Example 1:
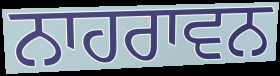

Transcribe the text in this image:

ਨਾਹਰਾਵਨ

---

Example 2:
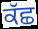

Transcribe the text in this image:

ਕੱਛ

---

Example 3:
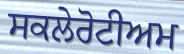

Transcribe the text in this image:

ਸਕਲੇਰੋਟੀਅਮ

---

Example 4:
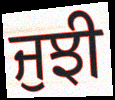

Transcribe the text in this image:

ਜੁਝੀ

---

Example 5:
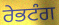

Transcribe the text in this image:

ਰੇਭਟੰਗ